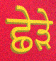
ਛੇੜੇ